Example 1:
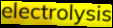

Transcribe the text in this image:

electrolysis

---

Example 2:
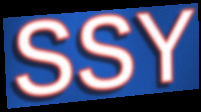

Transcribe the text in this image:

SSY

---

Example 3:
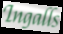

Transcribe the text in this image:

Ingalls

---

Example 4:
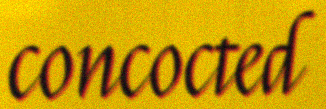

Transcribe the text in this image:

concocted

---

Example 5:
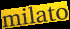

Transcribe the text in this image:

milato